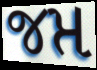
જપ્ત